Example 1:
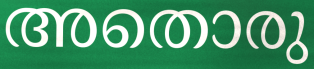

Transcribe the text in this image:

അതൊരു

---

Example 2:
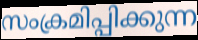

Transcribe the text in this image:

സംക്രമിപ്പിക്കുന്ന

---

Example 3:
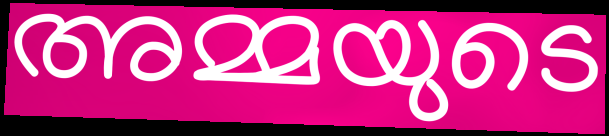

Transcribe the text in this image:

അമ്മയുടെ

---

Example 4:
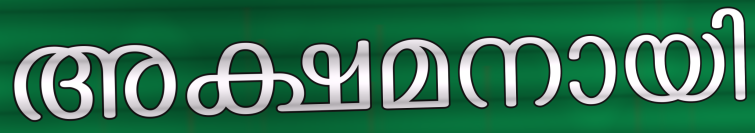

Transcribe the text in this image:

അക്ഷമനായി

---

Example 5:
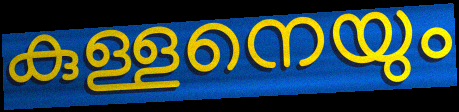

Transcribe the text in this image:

കുള്ളനെയും